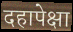
दहापेक्षा